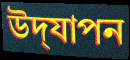
উদ্‌যাপন